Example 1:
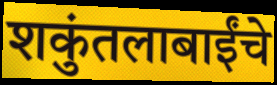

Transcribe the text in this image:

शकुंतलाबाईंचे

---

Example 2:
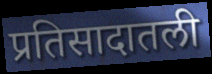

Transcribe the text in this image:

प्रतिसादातली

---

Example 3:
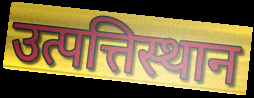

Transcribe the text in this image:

उत्पत्तिस्थान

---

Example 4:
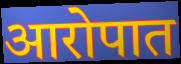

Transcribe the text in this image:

आरोपात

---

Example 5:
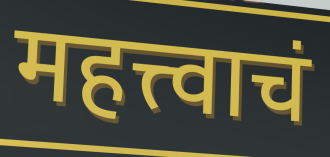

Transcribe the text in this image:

महत्त्वाचं